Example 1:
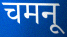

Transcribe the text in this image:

चमनू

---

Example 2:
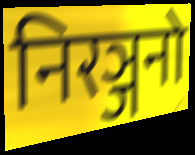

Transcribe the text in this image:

निरञ्जनो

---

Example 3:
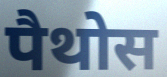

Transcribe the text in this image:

पैथोस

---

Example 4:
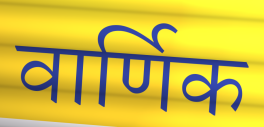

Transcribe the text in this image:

वार्णिक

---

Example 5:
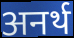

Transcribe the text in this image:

अनर्थ